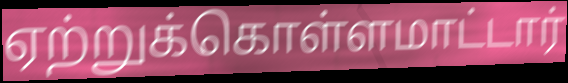
ஏற்றுக்கொள்ளமாட்டார்